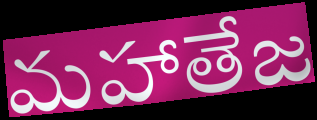
మహాతేజ